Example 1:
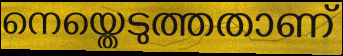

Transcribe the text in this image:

നെയ്തെടുത്തതാണ്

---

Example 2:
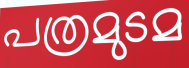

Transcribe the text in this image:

പത്രമുടമ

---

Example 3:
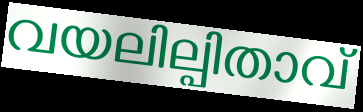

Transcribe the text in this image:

വയലില്പിതാവ്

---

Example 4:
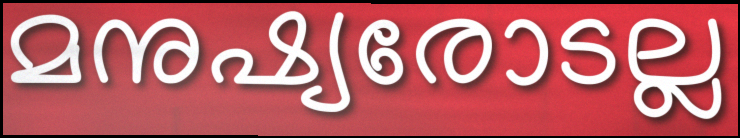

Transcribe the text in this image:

മനുഷ്യരോടല്ല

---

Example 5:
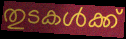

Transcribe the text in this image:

തുടകൾക്ക്